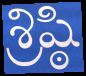
శ్రిష్ఠి